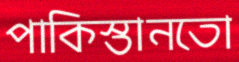
পাকিস্তানতো